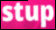
stup